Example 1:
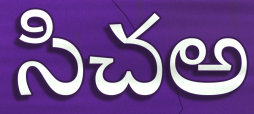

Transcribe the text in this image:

సిచఅ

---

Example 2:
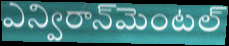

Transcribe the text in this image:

ఎన్విరాన్‌మెంటల్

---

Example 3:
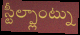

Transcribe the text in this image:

స్టీల్ప్లాంట్ను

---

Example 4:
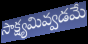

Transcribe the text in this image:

సాక్ష్యమివ్వడమే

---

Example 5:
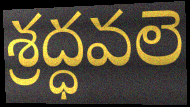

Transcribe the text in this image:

శ్రద్ధవలె